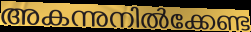
അകന്നുനിൽക്കേണ്ട